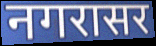
नगरासर